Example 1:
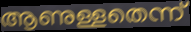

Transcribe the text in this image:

ആണുള്ളതെന്ന്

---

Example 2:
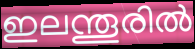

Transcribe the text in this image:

ഇലന്തൂരിൽ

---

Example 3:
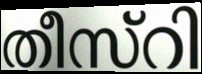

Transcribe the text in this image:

തീസ്റി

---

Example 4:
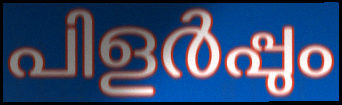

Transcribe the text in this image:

പിളർപ്പും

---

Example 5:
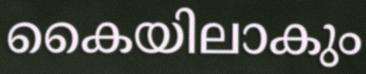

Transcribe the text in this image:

കൈയിലാകും